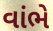
વાંભે